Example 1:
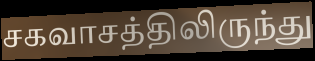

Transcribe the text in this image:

சகவாசத்திலிருந்து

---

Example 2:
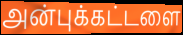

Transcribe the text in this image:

அன்புக்கட்டளை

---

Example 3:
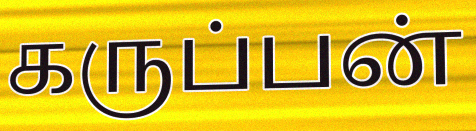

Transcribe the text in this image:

கருப்பன்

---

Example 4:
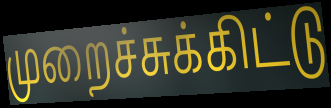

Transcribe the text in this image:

முறைச்சுக்கிட்டு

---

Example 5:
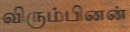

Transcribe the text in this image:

விரும்பினன்